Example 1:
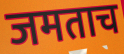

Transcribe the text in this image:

जमताच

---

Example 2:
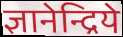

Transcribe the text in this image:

ज्ञानेन्द्रिये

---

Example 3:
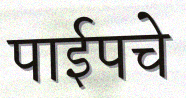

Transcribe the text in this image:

पाईपचे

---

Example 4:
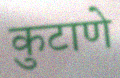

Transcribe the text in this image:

कुटाणे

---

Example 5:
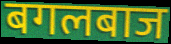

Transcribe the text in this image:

बगलबाज